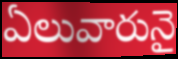
ఏలువారునై